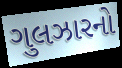
ગુલઝારનો